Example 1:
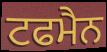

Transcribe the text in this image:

ਟਫਮੈਨ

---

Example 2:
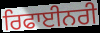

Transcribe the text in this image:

ਰਿਫਾਈਨਰੀ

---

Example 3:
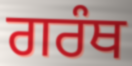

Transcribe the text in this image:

ਗਰੰਥ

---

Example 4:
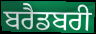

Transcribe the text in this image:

ਬਰੈਡਬਰੀ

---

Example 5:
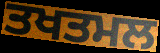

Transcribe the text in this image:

ਤਖਤਮਲ